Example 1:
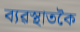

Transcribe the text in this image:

ব্যৱস্থাতকৈ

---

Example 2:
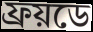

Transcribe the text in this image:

ফ্ৰয়ডে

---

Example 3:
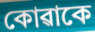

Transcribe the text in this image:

কোৱাকে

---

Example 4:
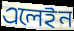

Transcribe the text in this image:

এলেইন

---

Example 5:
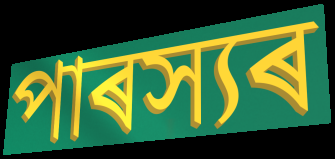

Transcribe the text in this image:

পাৰস্যৰ